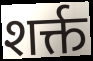
शर्क्त